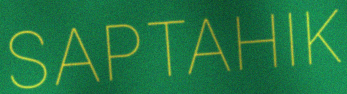
SAPTAHIK